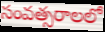
సంవత్సరాలలో